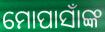
ମୋପାସାଁଙ୍କ